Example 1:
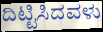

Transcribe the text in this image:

ದಿಟ್ಟಿಸಿದವಳು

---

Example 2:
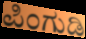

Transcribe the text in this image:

ಪಿಂಗುಡಿ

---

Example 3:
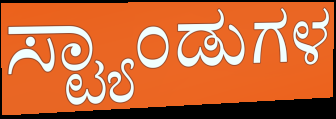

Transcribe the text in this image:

ಸ್ಟ್ಯಾಂಡುಗಳ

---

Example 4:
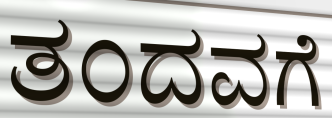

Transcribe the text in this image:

ತಂದವಗೆ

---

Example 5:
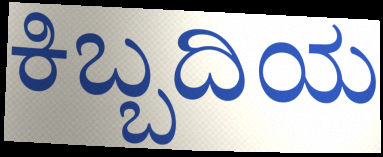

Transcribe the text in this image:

ಕಿಬ್ಬದಿಯ